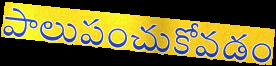
పాలుపంచుకోవడం